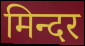
मिन्दर